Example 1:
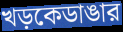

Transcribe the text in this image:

খড়কেডাঙার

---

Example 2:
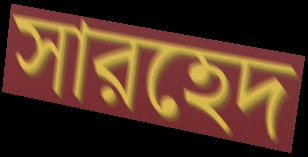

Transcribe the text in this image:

সারহেদ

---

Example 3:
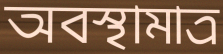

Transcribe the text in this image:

অবস্থামাত্র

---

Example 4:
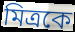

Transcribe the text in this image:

মিত্রকে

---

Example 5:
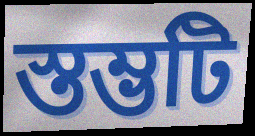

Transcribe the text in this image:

স্তম্ভটি